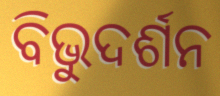
ବିଭୁଦର୍ଶନ